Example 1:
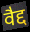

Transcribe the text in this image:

वैद्द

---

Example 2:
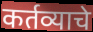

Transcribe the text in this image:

कर्तव्याचे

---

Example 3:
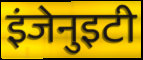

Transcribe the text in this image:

इंजेनुइटी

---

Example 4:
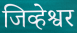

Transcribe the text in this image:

जिव्हेश्वर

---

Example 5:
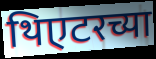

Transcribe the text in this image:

थिएटरच्या